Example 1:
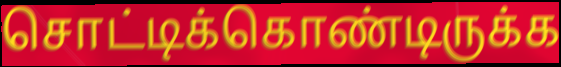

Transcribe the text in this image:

சொட்டிக்கொண்டிருக்க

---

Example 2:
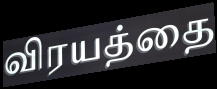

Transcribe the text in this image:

விரயத்தை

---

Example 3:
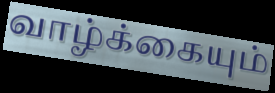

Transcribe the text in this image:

வாழ்க்கையும்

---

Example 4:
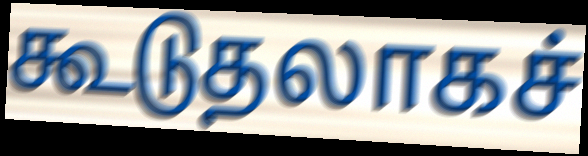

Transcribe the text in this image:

கூடுதலாகச்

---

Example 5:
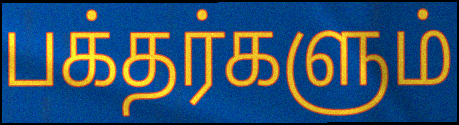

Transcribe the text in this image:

பக்தர்களும்